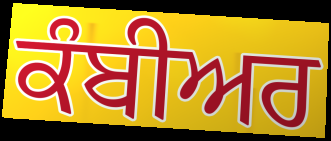
ਕੰਬੀਅਰ